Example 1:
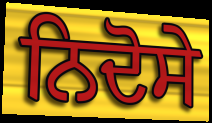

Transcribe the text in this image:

ਨਿਦੋਸੇ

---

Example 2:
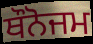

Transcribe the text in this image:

ਥੌਨੋਜਮ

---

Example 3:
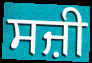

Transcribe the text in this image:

ਸਜ਼ੀ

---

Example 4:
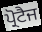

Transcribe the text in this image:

ਪ੍ਰੋਟੈਜ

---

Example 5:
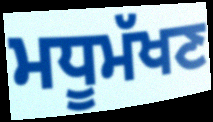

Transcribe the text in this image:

ਮਧੂਮੱਖਣ